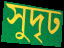
সুদৃঢ